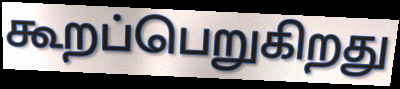
கூறப்பெறுகிறது